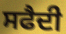
ਸਫੈਦੀ